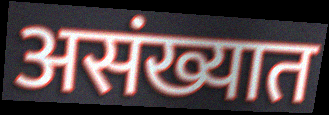
असंख्यात